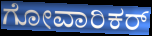
ಗೋವಾರಿಕರ್